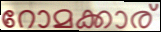
റോമക്കാര്